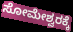
ಸೋಮೇಶ್ವರಕ್ಕೆ